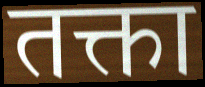
तक्ता